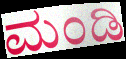
ಮಂಡಿ